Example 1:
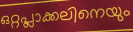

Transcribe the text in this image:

ഒറ്റപ്ലാക്കലിനെയും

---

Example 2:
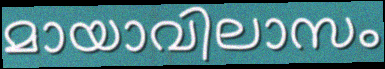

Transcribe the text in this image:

മായാവിലാസം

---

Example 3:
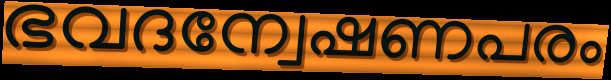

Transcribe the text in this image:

ഭവദന്വേഷണപരം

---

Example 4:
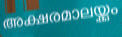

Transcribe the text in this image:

അക്ഷരമാലയ്ക്കും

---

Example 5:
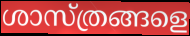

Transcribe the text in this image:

ശാസ്ത്രങ്ങളെ